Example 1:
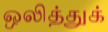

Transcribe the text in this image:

ஒலித்துக்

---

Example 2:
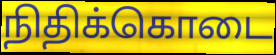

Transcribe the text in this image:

நிதிக்கொடை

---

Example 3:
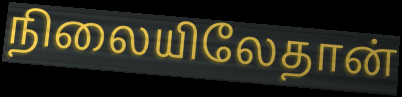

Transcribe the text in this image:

நிலையிலேதான்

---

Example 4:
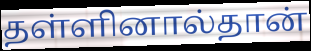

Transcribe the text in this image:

தள்ளினால்தான்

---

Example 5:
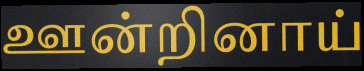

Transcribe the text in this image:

ஊன்றினாய்